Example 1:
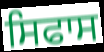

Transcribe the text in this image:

ਸਿਫਾਸ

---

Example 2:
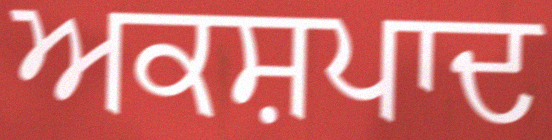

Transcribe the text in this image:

ਅਕਸ਼ਪਾਦ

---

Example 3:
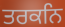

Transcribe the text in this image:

ਤਰਕਨਿ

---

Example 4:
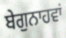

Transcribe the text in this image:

ਬੇਗੁਨਾਹਵਾਂ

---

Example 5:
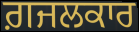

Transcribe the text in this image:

ਗ਼ਜਲਕਾਰ